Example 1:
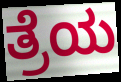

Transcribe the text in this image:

ತ್ರೆಯ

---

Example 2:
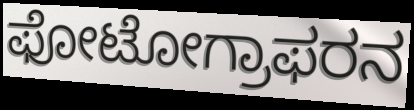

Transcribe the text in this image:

ಫೋಟೋಗ್ರಾಫರನ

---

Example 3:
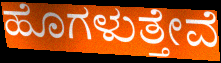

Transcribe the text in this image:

ಹೊಗಳುತ್ತೇವೆ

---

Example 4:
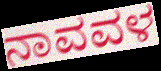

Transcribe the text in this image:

ನಾವವಳ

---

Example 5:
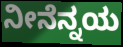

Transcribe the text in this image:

ನೀನೆನ್ನಯ